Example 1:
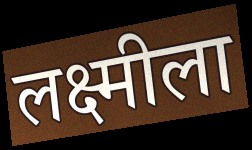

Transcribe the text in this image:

लक्ष्मीला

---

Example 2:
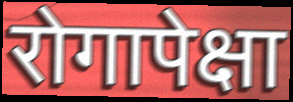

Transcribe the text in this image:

रोगापेक्षा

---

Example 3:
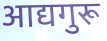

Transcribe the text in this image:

आद्यगुरू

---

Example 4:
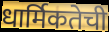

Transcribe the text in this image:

धार्मिकतेची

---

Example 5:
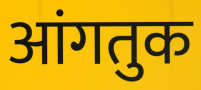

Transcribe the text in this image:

आंगतुक